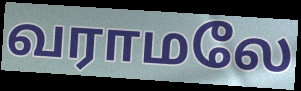
வராமலே